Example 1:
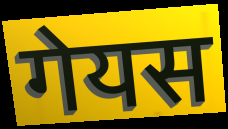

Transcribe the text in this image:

गेयस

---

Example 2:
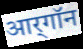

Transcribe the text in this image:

आर्‌गॉन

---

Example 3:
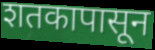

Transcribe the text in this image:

शतकापासून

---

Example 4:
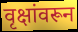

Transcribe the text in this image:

वृक्षांवरून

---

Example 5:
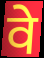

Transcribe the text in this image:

वे